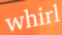
whirl